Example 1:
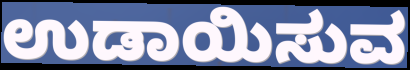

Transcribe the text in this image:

ಉಡಾಯಿಸುವ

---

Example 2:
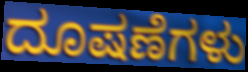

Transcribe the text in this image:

ದೂಷಣೆಗಳು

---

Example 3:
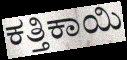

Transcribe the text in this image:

ಕತ್ತಿಕಾಯಿ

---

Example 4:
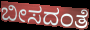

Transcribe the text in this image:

ಬೀಸದಂತೆ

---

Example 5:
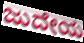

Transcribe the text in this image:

ಜುದೇಯ